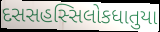
દસસહસ્સિલોકધાતુયા